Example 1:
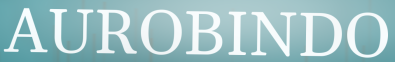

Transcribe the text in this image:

AUROBINDO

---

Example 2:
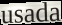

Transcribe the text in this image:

usada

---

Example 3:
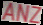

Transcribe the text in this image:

ANZ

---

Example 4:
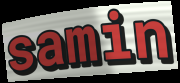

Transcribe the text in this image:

samin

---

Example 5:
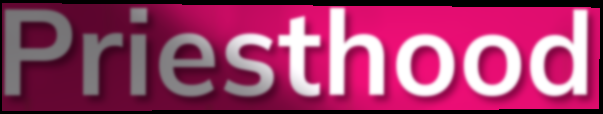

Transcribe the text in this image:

Priesthood